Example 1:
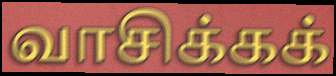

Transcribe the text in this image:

வாசிக்கக்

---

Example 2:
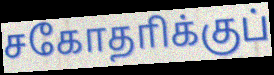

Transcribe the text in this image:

சகோதரிக்குப்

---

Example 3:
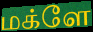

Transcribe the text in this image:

மக்ளே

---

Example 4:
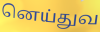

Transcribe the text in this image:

னெய்துவ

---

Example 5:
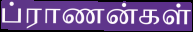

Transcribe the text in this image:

ப்ராணன்கள்